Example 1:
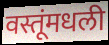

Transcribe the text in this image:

वस्तूंमधली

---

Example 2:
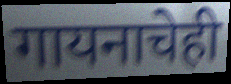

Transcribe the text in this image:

गायनाचेही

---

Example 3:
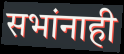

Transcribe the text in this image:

सभांनाही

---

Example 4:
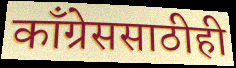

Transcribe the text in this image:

काँग्रेससाठीही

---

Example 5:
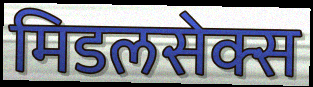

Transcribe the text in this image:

मिडलसेक्स